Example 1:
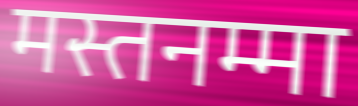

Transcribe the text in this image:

मस्तनम्मा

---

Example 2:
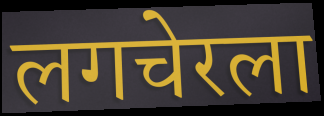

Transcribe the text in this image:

लगचेरला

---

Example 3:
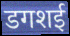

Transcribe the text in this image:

डगशई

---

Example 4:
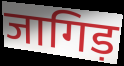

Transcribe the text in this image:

जागिड़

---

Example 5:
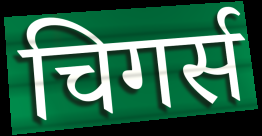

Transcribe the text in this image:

चिगर्स